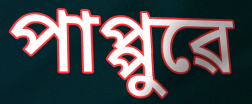
পাপ্পুৱে